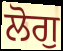
ਲੋਗੁ